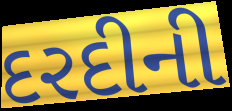
દરદીની